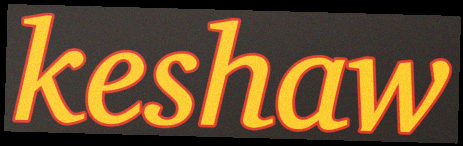
keshaw